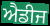
ਐਡੀਜ